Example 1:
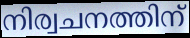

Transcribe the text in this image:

നിര്വചനത്തിന്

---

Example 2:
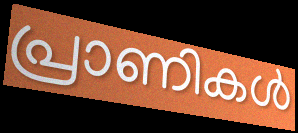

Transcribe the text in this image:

പ്രാണികൾ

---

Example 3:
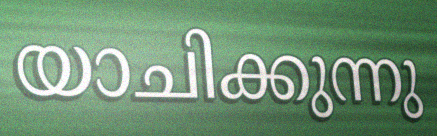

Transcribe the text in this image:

യാചിക്കുന്നു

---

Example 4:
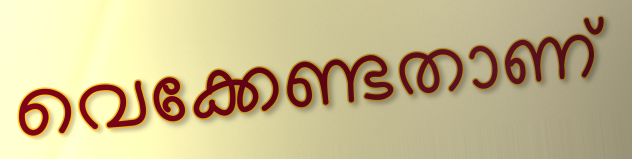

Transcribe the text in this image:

വെക്കേണ്ടതാണ്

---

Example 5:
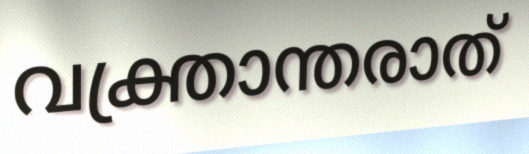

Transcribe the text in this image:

വക്ത്രാന്തരാത്